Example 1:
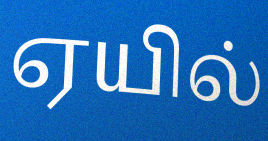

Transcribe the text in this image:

ஏயில்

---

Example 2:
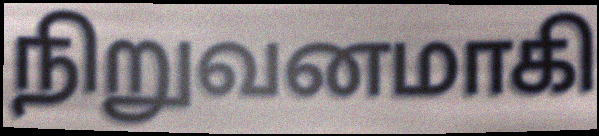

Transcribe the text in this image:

நிறுவனமாகி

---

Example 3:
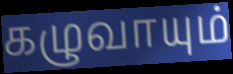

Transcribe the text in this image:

கழுவாயும்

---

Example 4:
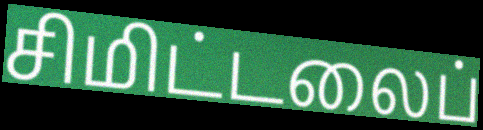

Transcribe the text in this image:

சிமிட்டலைப்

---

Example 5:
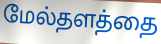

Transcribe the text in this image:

மேல்தளத்தை